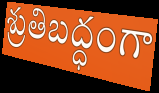
శ్రుతిబద్ధంగా